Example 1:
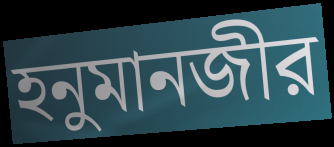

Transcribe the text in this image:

হনুমানজীর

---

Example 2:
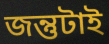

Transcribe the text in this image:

জন্তুটাই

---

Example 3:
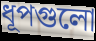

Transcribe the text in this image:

ধূপগুলো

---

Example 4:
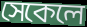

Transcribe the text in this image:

সেকেলে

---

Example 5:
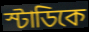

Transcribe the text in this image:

স্টাডিকে